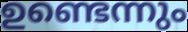
ഉണ്ടെന്നും